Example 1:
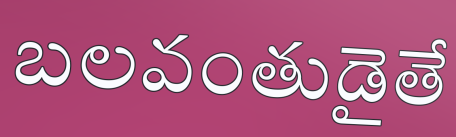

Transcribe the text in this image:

బలవంతుడైతే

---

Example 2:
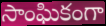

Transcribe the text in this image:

సాంఘికంగా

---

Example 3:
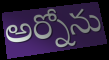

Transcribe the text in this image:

అర్నోను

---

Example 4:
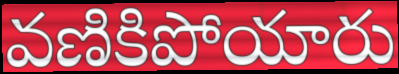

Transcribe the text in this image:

వణికిపోయారు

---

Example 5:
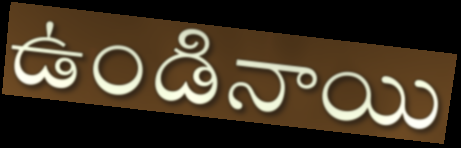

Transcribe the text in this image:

ఉండినాయి